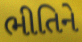
ભીતિને